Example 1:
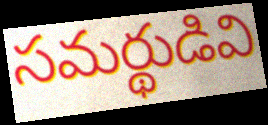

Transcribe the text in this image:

సమర్థుడివి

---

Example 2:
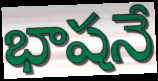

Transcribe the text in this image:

భాషనే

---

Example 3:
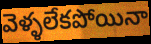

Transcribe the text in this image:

వెళ్ళలేకపోయినా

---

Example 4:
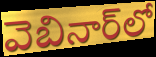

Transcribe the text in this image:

వెబినార్‌లో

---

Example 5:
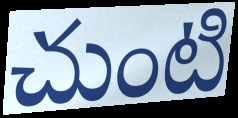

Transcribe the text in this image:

చుంటి